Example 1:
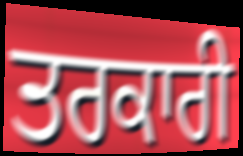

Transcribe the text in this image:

ਤਰਕਾਰੀ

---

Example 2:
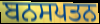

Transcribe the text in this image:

ਬਨਸਪਤਨ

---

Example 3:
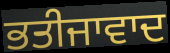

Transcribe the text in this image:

ਭਤੀਜਾਵਾਦ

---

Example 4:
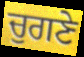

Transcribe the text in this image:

ਚੁਗਣੇ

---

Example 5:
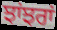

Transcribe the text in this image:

ਝਾਂਝਰਾਂ